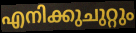
എനിക്കുചുറ്റും